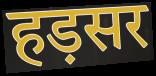
हड़सर